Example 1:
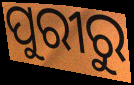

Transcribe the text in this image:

ପୁରୀରୁ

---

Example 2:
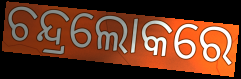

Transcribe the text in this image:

ଚନ୍ଦ୍ରଲୋକରେ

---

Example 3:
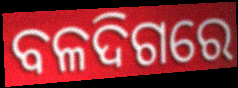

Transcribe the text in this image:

ବଳଦିଗରେ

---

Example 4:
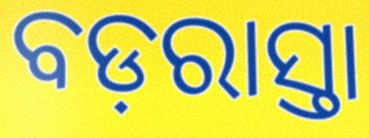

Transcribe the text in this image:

ବଡ଼ରାସ୍ତା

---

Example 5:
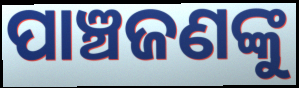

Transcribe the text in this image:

ପାଞ୍ଚଜଣଙ୍କୁ